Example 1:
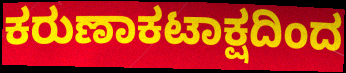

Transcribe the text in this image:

ಕರುಣಾಕಟಾಕ್ಷದಿಂದ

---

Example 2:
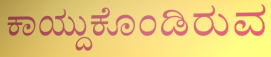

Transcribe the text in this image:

ಕಾಯ್ದುಕೊಂಡಿರುವ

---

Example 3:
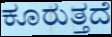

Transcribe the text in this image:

ಕೂರುತ್ತದೆ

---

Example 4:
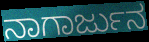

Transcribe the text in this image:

ನಾಗಾರ್ಜುನ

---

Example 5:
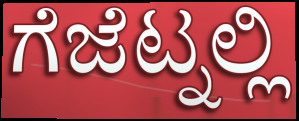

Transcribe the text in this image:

ಗೆಜೆಟ್ನಲ್ಲಿ